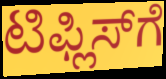
ಟಿಫ್ಲಿಸ್‍ಗೆ